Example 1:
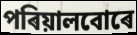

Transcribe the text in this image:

পৰিয়ালবোৰে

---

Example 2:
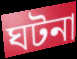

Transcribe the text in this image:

ঘটনা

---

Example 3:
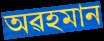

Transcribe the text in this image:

অৱহমান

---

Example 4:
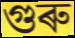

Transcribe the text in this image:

গুৰু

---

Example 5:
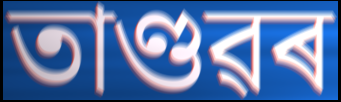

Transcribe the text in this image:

তাণ্ডৱৰ